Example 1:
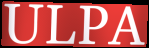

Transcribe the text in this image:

ULPA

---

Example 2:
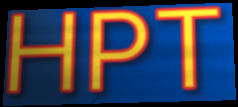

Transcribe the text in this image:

HPT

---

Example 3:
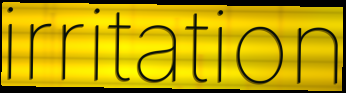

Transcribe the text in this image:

irritation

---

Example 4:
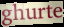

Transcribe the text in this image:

ghurte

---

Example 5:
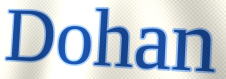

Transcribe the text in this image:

Dohan